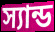
স্যান্ড